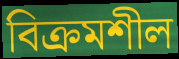
বিক্ৰমশীল